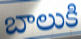
బాలుకి